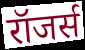
रॉजर्स